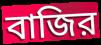
বাজির